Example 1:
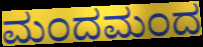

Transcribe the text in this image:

ಮಂದಮಂದ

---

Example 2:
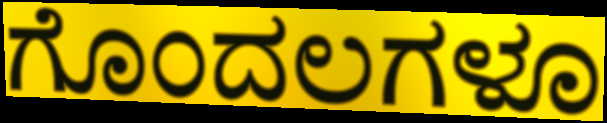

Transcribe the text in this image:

ಗೊಂದಲಗಳೂ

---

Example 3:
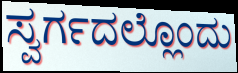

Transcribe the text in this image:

ಸ್ವರ್ಗದಲ್ಲೊಂದು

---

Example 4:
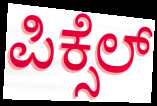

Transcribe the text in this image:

ಪಿಕ್ಸೆಲ್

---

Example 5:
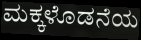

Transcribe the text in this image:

ಮಕ್ಕಳೊಡನೆಯ